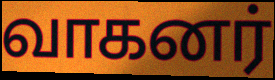
வாகனர்